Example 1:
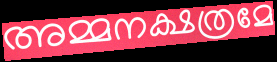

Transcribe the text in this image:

അമ്മനക്ഷത്രമേ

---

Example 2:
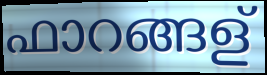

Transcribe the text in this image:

ഫാറങ്ങള്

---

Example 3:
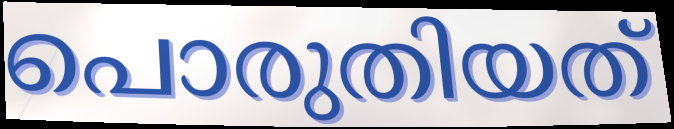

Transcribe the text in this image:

പൊരുതിയത്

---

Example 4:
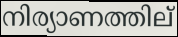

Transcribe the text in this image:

നിര്യാണത്തില്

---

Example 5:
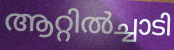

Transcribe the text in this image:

ആറ്റിൽച്ചാടി